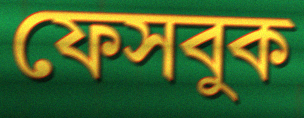
ফেসবুক